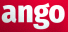
ango